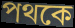
পথকে